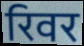
रिवर